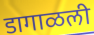
डागाळली